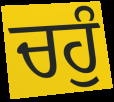
ਚਹੁੰ